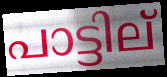
പാട്ടില്